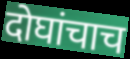
दोघांचाच